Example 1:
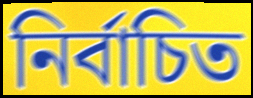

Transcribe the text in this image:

নির্বাচিত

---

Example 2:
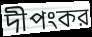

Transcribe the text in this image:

দীপংকর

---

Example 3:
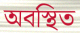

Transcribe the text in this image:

অবস্থিত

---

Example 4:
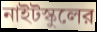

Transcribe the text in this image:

নাইটস্কুলের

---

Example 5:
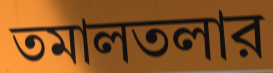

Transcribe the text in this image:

তমালতলার